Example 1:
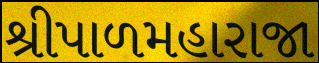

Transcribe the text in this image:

શ્રીપાળમહારાજા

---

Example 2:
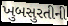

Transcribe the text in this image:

ખુબસુરતીની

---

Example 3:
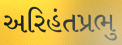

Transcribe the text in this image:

અરિહંતપ્રભુ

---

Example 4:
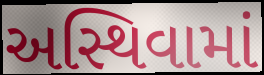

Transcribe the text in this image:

અસ્થિવામાં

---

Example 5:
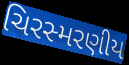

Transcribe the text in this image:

ચિરસ્મરણીય